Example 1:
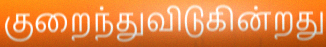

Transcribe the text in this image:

குறைந்துவிடுகின்றது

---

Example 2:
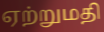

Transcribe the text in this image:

ஏற்றுமதி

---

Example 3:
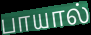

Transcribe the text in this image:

பாயால்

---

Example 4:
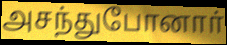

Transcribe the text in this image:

அசந்துபோனார்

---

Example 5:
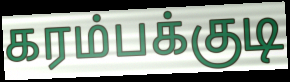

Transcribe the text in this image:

கரம்பக்குடி